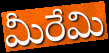
మీరేమి